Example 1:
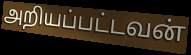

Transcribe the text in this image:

அறியப்பட்டவன்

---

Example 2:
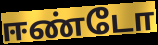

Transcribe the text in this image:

ஈண்டோ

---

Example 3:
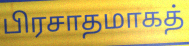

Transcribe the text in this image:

பிரசாதமாகத்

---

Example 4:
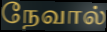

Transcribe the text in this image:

நேவால்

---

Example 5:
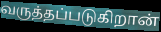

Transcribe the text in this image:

வருத்தப்படுகிறான்